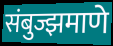
संबुज्झमाणे